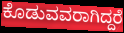
ಕೊಡುವವರಾಗಿದ್ದರೆ